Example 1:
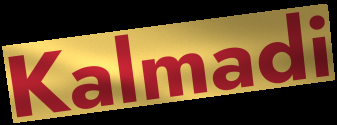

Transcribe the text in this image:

Kalmadi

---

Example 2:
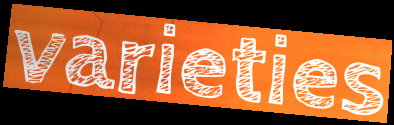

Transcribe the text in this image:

varieties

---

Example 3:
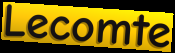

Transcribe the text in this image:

Lecomte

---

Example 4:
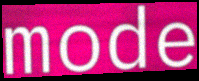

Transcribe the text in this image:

mode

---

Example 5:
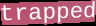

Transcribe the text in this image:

trapped